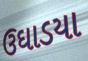
ઉઘાડયા